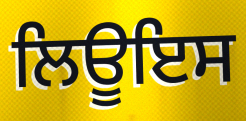
ਲਿਊਇਸ